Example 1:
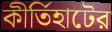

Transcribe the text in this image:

কীর্তিহাটের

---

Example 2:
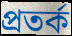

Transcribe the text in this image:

প্রতর্ক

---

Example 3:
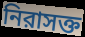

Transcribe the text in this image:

নিরাসক্ত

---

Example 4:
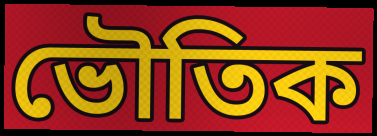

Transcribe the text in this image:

ভৌতিক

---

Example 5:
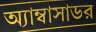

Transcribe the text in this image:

অ্যাম্বাসাডর